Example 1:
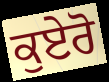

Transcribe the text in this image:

ਕੁਏਰੋ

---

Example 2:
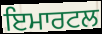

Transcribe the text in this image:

ਇਮਾਰਟਲ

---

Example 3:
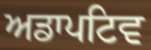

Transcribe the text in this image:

ਅਡਾਪਟਿਵ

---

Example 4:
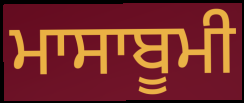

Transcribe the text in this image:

ਮਾਸਾਬੂਮੀ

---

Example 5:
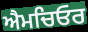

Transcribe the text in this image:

ਐਮਚਿਓਰ